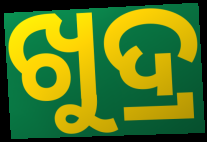
ଖୁଦ୍ର